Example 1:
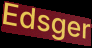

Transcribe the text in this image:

Edsger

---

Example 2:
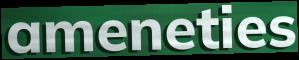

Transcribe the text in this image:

ameneties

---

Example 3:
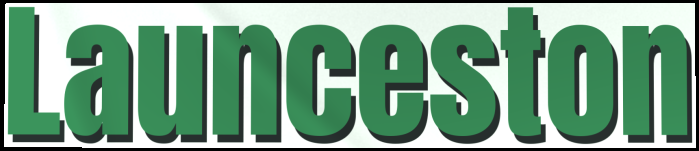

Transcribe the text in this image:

Launceston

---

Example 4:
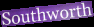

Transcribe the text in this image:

Southworth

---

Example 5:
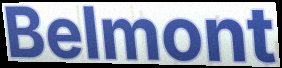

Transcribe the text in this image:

Belmont